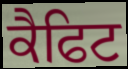
ਕੈਫਿਟ